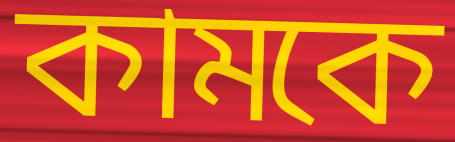
কামকে